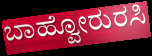
ಬಾಹ್ವೋರುರಸಿ